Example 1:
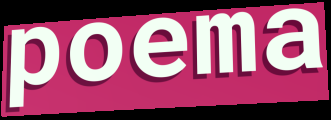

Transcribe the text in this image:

poema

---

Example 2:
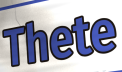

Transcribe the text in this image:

Thete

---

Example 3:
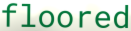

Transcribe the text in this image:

floored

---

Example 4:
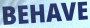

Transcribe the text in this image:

BEHAVE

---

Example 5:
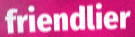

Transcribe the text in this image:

friendlier